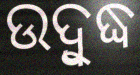
ଉଦ୍ୱୁଦ୍ଧ